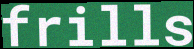
frills